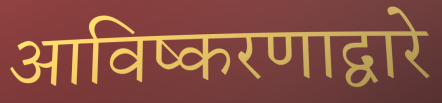
आविष्करणाद्वारे